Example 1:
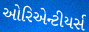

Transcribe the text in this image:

ઓરિએન્ટીયર્સ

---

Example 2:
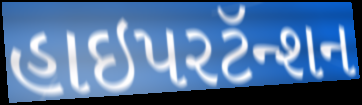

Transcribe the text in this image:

હાઇપરટૅન્શન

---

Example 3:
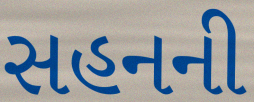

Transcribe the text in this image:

સહનની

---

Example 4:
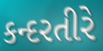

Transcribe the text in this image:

કન્દરતીરે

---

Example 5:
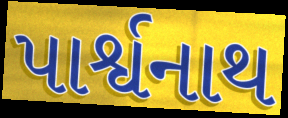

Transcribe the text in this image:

પાર્શ્વનાથ